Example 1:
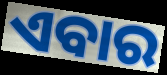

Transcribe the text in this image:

ଏବାର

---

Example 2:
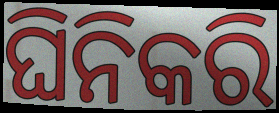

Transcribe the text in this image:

ଘିନିକରି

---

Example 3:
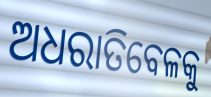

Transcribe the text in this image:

ଅଧରାତିବେଳକୁ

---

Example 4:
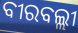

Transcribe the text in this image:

ବୀରବଲ୍ଲୀ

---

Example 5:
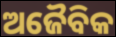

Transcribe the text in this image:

ଅଜୈବିକ